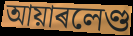
আয়াৰলেণ্ড